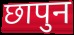
छापुन